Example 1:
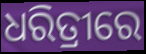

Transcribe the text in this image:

ଧରିତ୍ରୀରେ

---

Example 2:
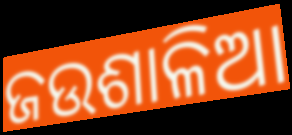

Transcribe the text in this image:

ଜଉଶାଳିଆ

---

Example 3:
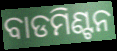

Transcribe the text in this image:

ବାଡମିଣ୍ଟନ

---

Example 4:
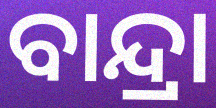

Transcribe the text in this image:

ବାନ୍ଦ୍ରା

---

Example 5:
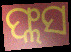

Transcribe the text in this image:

ଫ୍ଲସ